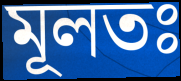
মূলতঃ